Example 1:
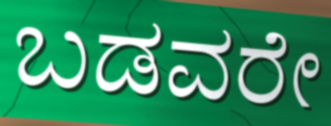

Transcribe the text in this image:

ಬಡವರೇ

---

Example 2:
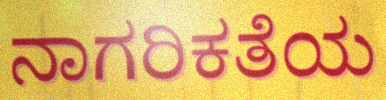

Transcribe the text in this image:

ನಾಗರಿಕತೆಯ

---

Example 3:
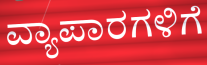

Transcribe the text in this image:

ವ್ಯಾಪಾರಗಳಿಗೆ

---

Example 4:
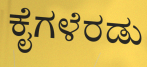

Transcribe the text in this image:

ಕೈಗಳೆರಡು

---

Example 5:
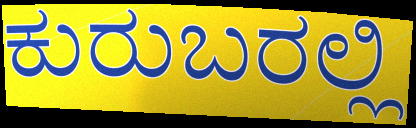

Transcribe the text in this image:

ಕುರುಬರಲ್ಲಿ